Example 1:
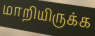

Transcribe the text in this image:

மாறியிருக்க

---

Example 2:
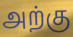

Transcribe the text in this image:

அற்கு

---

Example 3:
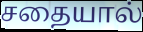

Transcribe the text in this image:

சதையால்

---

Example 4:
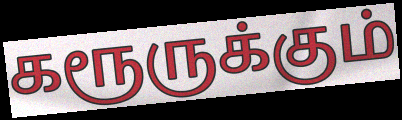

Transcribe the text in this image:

கரூருக்கும்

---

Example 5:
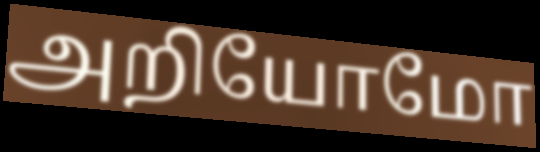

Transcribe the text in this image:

அறியோமோ